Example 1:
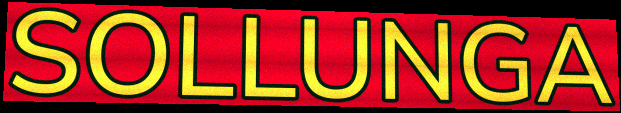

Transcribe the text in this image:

SOLLUNGA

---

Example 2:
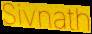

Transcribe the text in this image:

Sivnath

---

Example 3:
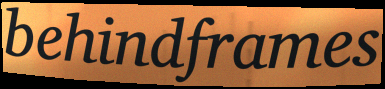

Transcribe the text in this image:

behindframes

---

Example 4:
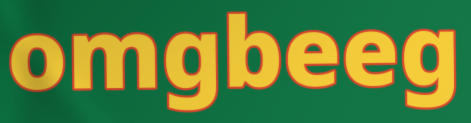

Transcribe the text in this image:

omgbeeg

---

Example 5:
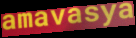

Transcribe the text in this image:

amavasya